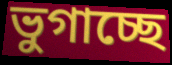
ভুগাচ্ছে